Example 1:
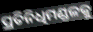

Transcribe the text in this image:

ପ୍ରତିନିଧିମଣ୍ଡଳକୁ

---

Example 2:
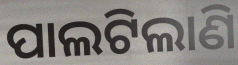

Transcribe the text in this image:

ପାଲଟିଲାଣି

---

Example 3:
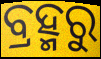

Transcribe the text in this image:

ବ୍ରହ୍ମରୁ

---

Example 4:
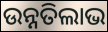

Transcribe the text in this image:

ଉନ୍ନତିଲାଭ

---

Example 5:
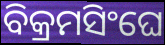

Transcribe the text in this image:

ବିକ୍ରମସିଂଘେ